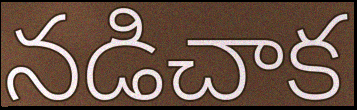
నడిచాక